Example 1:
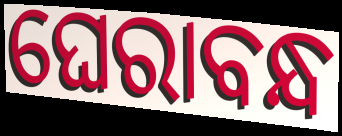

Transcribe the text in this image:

ଘେରାବନ୍ଧ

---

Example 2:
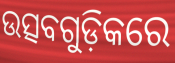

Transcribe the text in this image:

ଉତ୍ସବଗୁଡ଼ିକରେ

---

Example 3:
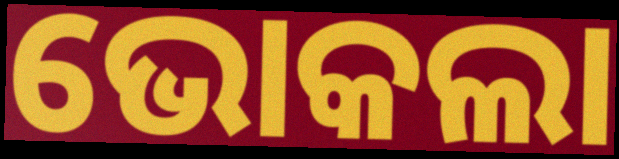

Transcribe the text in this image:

ଭୋକଲା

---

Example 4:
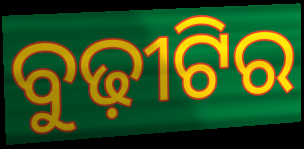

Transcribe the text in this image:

ବୁଢ଼ୀଟିର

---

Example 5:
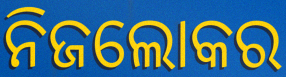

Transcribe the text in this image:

ନିଜଲୋକର